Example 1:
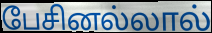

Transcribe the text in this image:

பேசினல்லால்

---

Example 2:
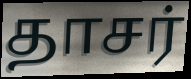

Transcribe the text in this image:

தாசர்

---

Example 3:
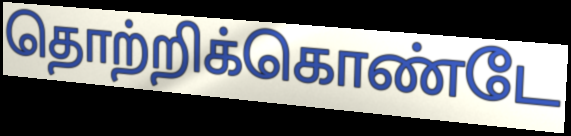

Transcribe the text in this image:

தொற்றிக்கொண்டே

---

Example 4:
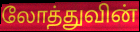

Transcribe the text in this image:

லோத்துவின்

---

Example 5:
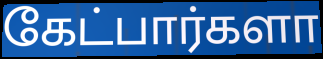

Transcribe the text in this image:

கேட்பார்களா